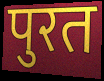
पुरत